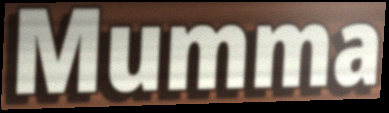
Mumma